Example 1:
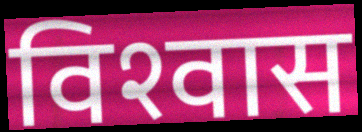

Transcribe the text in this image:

विश्वास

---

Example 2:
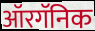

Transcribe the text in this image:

ऑरगॅनिक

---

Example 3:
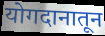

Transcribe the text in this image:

योगदानातून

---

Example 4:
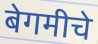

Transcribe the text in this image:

बेगमीचे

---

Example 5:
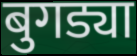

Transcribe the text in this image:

बुगड्या